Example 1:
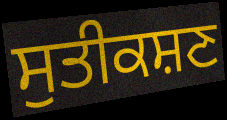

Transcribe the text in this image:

ਸੁਤੀਕਸ਼ਣ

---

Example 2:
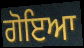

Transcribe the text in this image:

ਗੋਇਆ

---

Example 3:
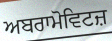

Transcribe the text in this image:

ਅਬਰਾਮੋਵਿਟਜ਼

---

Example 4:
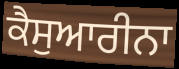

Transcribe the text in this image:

ਕੈਸੁਆਰੀਨਾ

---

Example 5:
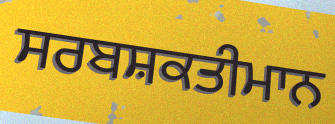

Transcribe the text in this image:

ਸਰਬਸ਼ਕਤੀਮਾਨ